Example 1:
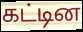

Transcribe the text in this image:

கட்டின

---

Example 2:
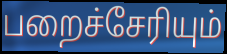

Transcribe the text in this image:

பறைச்சேரியும்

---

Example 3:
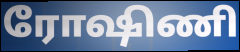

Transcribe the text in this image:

ரோஷிணி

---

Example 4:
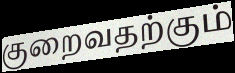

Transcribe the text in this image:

குறைவதற்கும்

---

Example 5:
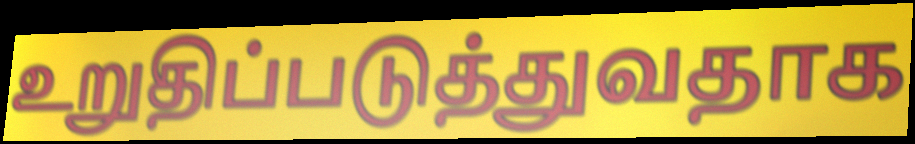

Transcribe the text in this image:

உறுதிப்படுத்துவதாக